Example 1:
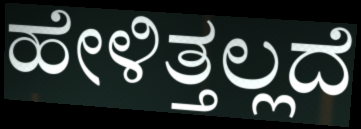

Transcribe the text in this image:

ಹೇಳಿತ್ತಲ್ಲದೆ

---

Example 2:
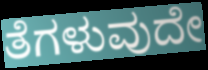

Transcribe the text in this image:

ತೆಗಳುವುದೇ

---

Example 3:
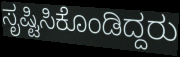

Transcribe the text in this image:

ಸೃಷ್ಟಿಸಿಕೊಂಡಿದ್ದರು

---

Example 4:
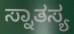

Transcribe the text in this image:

ಸ್ನಾತಸ್ಯ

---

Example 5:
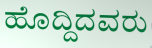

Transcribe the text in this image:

ಹೊದ್ದಿದವರು